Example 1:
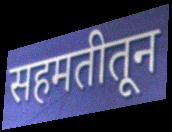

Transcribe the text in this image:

सहमतीतून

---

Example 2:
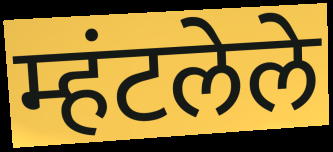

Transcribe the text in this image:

म्हंटलेले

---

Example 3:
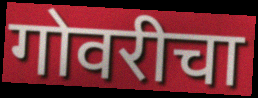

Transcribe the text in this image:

गोवरीचा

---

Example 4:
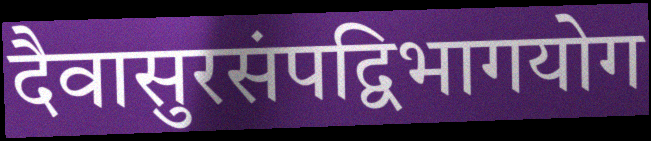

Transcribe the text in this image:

दैवासुरसंपद्विभागयोग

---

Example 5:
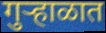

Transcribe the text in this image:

गुऱ्हाळात